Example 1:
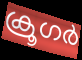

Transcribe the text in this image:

ക്രൂഗർ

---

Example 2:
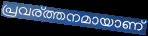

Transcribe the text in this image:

പ്രവര്ത്തനമായാണ്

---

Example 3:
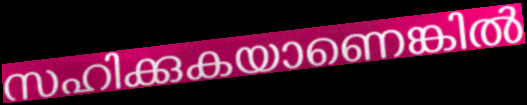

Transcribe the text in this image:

സഹിക്കുകയാണെങ്കിൽ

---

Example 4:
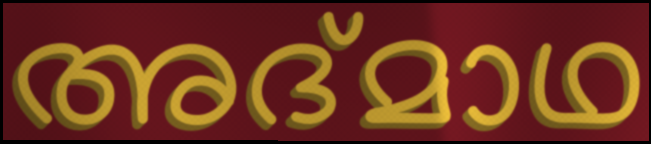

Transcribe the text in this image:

അദ്മാഥ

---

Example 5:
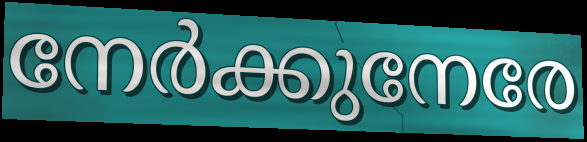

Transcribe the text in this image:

നേർക്കുനേരേ